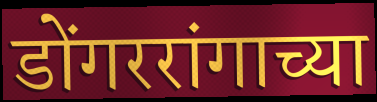
डोंगररांगाच्या